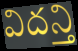
విదన్తి